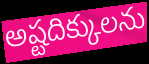
అష్టదిక్కులను